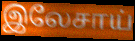
இலேசாய்